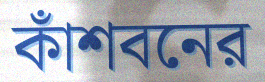
কাঁশবনের